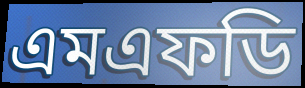
এমএফডি